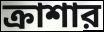
ক্রাশার